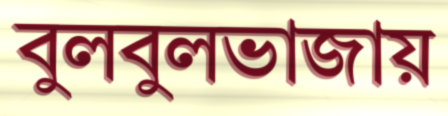
বুলবুলভাজায়